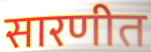
सारणीत